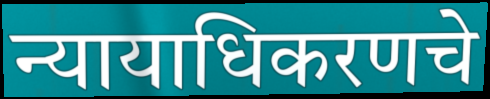
न्यायाधिकरणचे